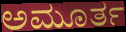
ಅಮೂರ್ತ